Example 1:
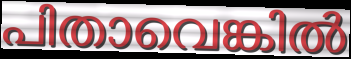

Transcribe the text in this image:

പിതാവെങ്കിൽ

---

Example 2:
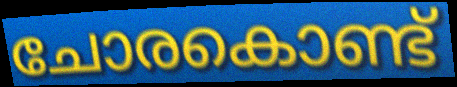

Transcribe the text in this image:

ചോരകൊണ്ട്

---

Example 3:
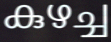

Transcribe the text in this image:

കുഴച്ച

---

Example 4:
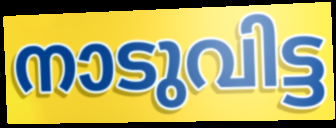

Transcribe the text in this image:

നാടുവിട്ട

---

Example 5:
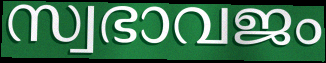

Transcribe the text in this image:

സ്വഭാവജം